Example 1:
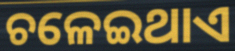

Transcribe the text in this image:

ଚଳେଇଥାଏ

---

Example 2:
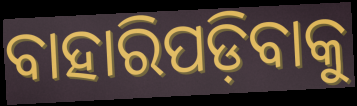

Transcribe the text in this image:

ବାହାରିପଡ଼ିବାକୁ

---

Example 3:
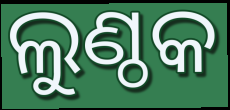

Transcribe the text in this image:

ଲୁଣ୍ଠକ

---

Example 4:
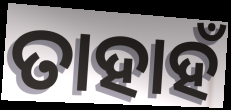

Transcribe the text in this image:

ତାହାହଁ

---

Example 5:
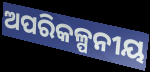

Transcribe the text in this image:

ଅପରିକଳ୍ପନୀୟ